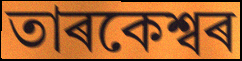
তাৰকেশ্বৰ